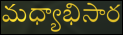
మధ్యాభిసార